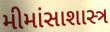
મીમાંસાશાસ્ત્ર